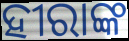
ହୀରାଙ୍କ